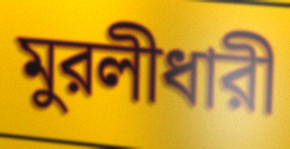
মুরলীধারী